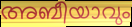
അബീയാവും